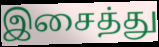
இசைத்து